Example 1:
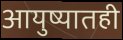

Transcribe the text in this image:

आयुष्यातही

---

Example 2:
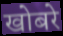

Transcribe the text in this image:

खोबरे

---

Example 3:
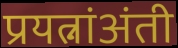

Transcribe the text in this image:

प्रयत्नांअंती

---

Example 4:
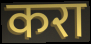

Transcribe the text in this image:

करा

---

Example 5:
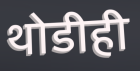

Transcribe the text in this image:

थोडीही